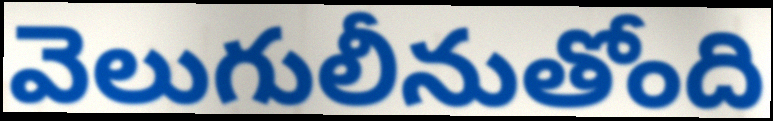
వెలుగులీనుతోంది